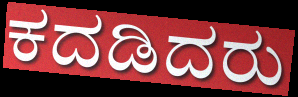
ಕದಡಿದರು